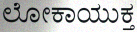
ಲೋಕಾಯುಕ್ತ